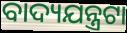
ବାଦ୍ୟଯନ୍ତ୍ରଟା